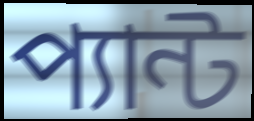
প্যান্ট